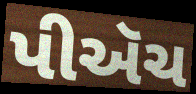
પીઍચ